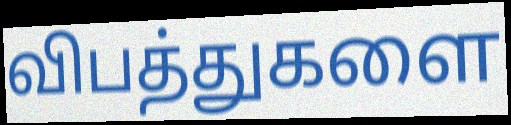
விபத்துகளை